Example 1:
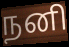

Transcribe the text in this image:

நனி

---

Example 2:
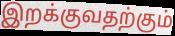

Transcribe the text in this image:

இறக்குவதற்கும்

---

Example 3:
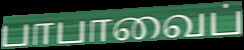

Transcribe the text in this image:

பாபாவைப்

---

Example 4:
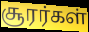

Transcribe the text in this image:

சூரர்கள்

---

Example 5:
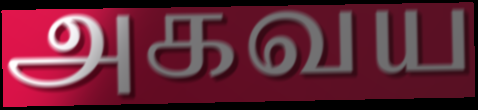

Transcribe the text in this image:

அகவய